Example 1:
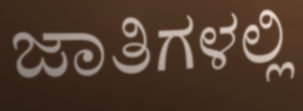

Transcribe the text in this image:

ಜಾತಿಗಳಲ್ಲಿ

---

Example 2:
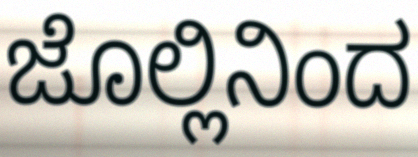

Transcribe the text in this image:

ಜೊಲ್ಲಿನಿಂದ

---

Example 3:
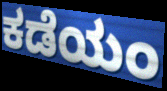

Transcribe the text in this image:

ಕಡೆಯಂ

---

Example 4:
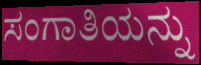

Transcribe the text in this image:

ಸಂಗಾತಿಯನ್ನು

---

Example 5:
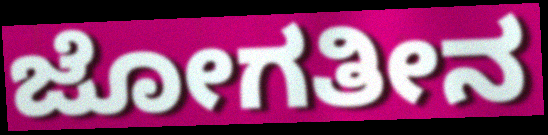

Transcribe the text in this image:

ಜೋಗತೀನ